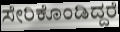
ಸೇರಿಕೊಂಡಿದ್ದರೆ